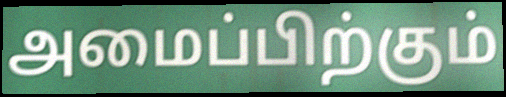
அமைப்பிற்கும்